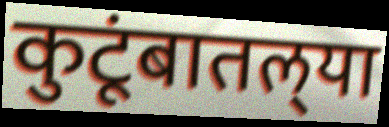
कुटूंबातल्या